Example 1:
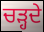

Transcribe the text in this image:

ਚਡ਼੍ਹਦੇ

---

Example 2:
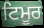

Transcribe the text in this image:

ਟਿਮੂਰ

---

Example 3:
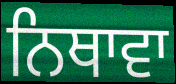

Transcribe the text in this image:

ਨਿਥਾਵਾ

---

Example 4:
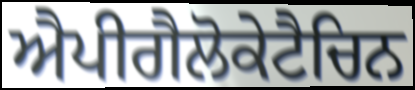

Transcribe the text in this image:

ਐਪੀਗੈਲੋਕੇਟੈਚਿਨ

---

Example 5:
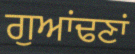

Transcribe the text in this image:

ਗੁਆਂਢਣਾਂ